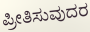
ಪ್ರೀತಿಸುವುದರ